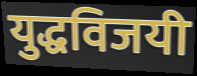
युद्धविजयी